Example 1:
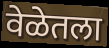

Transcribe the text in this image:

वेळेतला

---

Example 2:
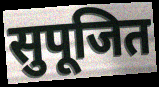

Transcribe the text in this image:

सुपूजित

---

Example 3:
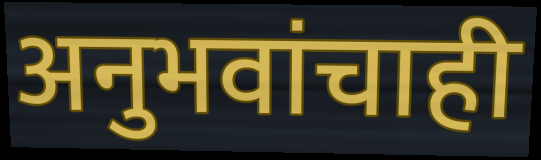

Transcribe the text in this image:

अनुभवांचाही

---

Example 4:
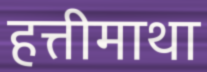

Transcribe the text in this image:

हत्तीमाथा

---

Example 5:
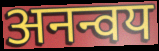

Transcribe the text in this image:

अनन्वय